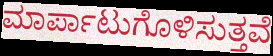
ಮಾರ್ಪಾಟುಗೊಳಿಸುತ್ತವೆ